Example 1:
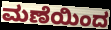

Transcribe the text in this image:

ಮಣೆಯಿಂದ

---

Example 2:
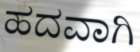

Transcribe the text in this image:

ಹದವಾಗಿ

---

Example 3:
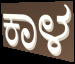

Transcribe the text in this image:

ಕಾಳ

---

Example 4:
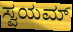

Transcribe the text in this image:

ಸ್ವಯಮ್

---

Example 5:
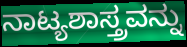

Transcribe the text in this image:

ನಾಟ್ಯಶಾಸ್ತ್ರವನ್ನು